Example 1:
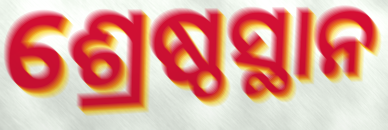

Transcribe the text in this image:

ଶ୍ରେଷ୍ଠସ୍ଥାନ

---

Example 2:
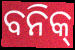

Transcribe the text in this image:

ବନିକ୍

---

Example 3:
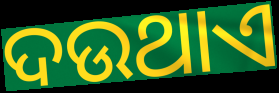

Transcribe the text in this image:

ଦଉଥାଏ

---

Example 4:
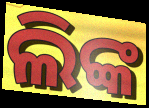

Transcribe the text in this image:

ଲିଙ୍କ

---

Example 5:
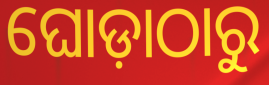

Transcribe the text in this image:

ଘୋଡ଼ାଠାରୁ